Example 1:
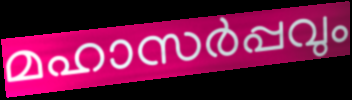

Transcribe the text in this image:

മഹാസർപ്പവും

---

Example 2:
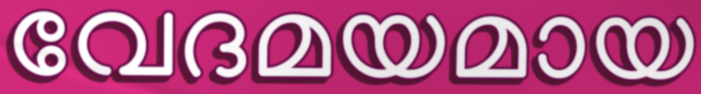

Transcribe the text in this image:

വേദമയമായ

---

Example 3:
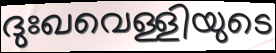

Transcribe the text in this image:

ദുഃഖവെള്ളിയുടെ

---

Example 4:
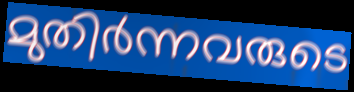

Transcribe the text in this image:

മുതിർന്നവരുടെ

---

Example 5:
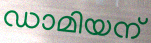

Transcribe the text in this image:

ഡാമിയന്